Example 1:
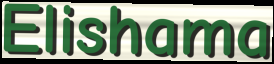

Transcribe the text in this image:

Elishama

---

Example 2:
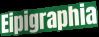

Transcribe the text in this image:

Eipigraphia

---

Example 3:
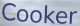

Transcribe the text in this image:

Cooker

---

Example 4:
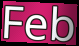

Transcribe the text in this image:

Feb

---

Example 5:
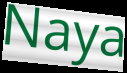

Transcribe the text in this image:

Naya